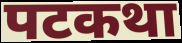
पटकथा